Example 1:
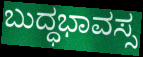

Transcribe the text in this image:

ಬುದ್ಧಭಾವಸ್ಸ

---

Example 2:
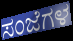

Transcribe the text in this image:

ಸಂಜೆಗಳ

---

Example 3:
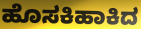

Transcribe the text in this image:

ಹೊಸಕಿಹಾಕಿದ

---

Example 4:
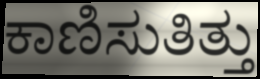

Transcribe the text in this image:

ಕಾಣಿಸುತಿತ್ತು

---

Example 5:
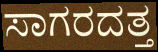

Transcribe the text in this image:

ಸಾಗರದತ್ತ